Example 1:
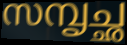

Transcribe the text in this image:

സമ്പൃച്ഛ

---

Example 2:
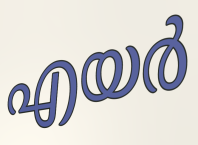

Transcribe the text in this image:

എയർ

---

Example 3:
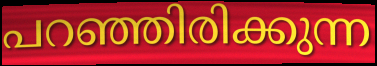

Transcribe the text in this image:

പറഞ്ഞിരിക്കുന്ന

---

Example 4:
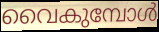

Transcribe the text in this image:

വൈകുമ്പോൾ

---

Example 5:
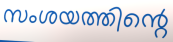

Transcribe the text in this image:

സംശയത്തിന്റെ